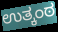
ಉತ್ಕಂಠ